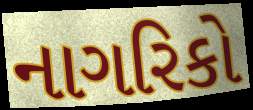
નાગરિકો